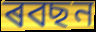
ৰবছন